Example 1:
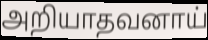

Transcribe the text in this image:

அறியாதவனாய்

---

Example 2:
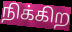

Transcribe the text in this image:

நிக்கிற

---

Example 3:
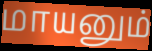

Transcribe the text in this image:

மாயனும்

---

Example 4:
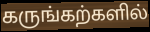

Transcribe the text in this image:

கருங்கற்களில்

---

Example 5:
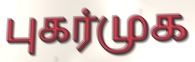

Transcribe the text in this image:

புகர்முக